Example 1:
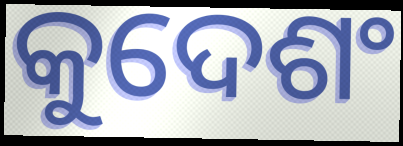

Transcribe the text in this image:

କୁଦେଶଂ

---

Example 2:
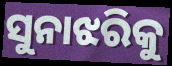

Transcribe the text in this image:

ସୁନାଝରିକୁ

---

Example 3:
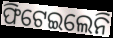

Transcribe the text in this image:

ଫିଟେଇଲେନି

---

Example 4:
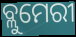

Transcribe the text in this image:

ବ୍ଲୁମେରୀ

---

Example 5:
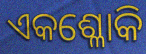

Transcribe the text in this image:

ଏକଶ୍ଳୋକି